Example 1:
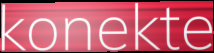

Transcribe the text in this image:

konekte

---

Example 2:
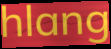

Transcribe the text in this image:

hlang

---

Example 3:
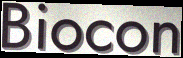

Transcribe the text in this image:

Biocon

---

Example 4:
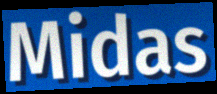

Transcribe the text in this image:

Midas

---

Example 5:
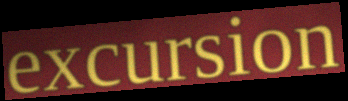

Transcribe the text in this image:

excursion